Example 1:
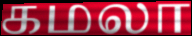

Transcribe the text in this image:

கமலா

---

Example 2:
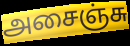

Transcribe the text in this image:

அசைஞ்சு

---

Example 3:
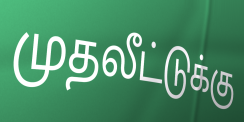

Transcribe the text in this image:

முதலீட்டுக்கு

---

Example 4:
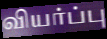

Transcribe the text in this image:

வியர்ப்பு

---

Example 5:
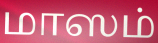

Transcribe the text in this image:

மாஸம்